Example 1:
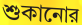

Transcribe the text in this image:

শুকানোর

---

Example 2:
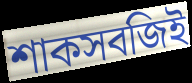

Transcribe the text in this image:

শাকসবজিই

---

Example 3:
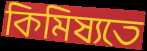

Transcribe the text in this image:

কিমিষ্যতে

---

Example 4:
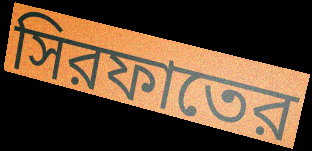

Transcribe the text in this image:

সিরফাতের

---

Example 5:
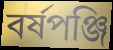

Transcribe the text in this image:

বর্ষপঞ্জি